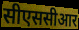
सीएससीआर